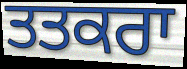
ਤਤਕਰਾ